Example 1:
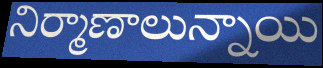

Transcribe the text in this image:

నిర్మాణాలున్నాయి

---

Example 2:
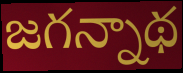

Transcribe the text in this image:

జగన్నాథ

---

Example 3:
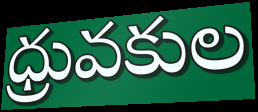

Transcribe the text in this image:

ధ్రువకుల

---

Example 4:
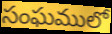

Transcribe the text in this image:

సంఘములో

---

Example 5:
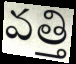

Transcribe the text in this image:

వత్తి